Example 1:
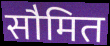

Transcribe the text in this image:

सौमित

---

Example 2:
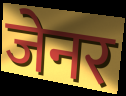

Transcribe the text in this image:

जेनर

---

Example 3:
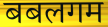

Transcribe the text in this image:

बबलगम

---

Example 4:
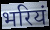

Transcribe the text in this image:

भरियं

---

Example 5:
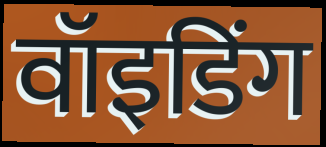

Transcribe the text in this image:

वॉइडिंग